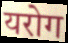
यरोग